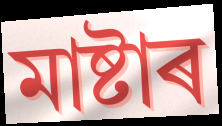
মাষ্টাৰ